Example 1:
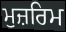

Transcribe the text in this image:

ਮੁਜ਼ਰਿਮ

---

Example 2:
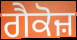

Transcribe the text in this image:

ਗੈਕੋਜ਼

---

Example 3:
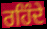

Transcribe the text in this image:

ਰਹਿੰਦੇ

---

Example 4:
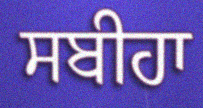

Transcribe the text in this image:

ਸਬੀਹਾ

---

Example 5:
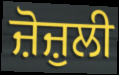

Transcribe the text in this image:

ਜ਼ੋਜ਼ੁਲੀ